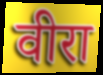
वीरा